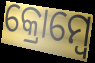
କ୍ରୋମ୍ବେ